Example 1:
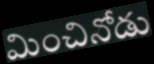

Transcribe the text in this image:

మించినోడు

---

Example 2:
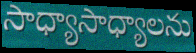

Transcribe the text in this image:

సాధ్యాసాధ్యాలను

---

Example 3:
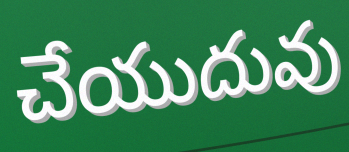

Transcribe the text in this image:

చేయుదువు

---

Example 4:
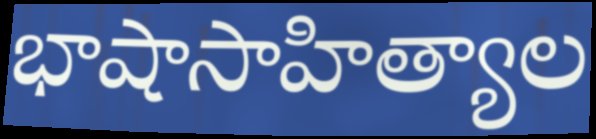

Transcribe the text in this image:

భాషాసాహిత్యాల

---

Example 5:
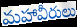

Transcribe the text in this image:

మహావీరులు